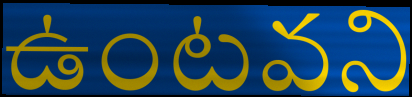
ఉంటవని